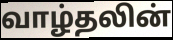
வாழ்தலின்